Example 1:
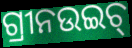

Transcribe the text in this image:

ଗ୍ରୀନଉଇଚ୍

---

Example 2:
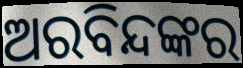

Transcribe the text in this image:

ଅରବିନ୍ଦଙ୍କର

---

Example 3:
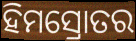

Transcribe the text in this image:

ହିମସ୍ରୋତର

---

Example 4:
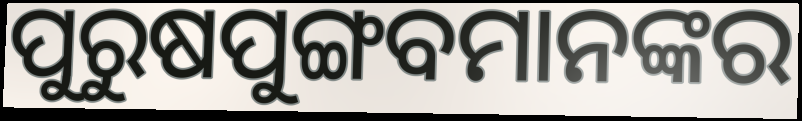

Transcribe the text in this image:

ପୁରୁଷପୁଙ୍ଗବମାନଙ୍କର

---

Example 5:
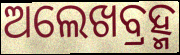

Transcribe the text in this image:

ଅଲେଖବ୍ରହ୍ମ